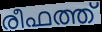
രീഫത്ത്